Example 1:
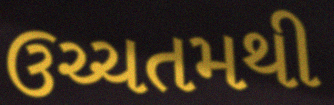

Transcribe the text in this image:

ઉચ્ચતમથી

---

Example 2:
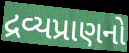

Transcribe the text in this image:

દ્રવ્યપ્રાણનો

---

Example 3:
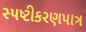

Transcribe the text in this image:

સ્પષ્ટીકરણપાત્ર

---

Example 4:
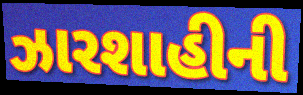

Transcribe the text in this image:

ઝારશાહીની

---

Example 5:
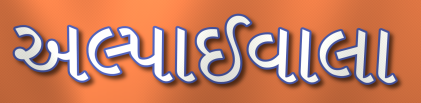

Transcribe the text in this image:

અલ્પાઈવાલા